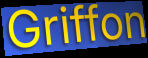
Griffon